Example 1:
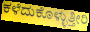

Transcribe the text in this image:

ಕಳೆದುಕೊಳ್ಳುತ್ತೀರಿ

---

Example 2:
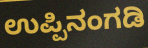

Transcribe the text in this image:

ಉಪ್ಪಿನಂಗಡಿ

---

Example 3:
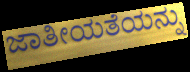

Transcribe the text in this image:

ಜಾತೀಯತೆಯನ್ನು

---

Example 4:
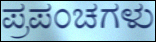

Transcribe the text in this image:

ಪ್ರಪಂಚಗಳು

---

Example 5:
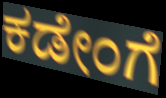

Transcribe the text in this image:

ಕಡೇಂಗೆ